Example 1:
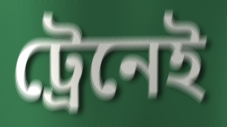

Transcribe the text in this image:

ট্রেনেই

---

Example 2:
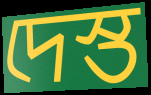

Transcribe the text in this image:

দেস্ত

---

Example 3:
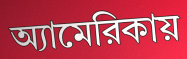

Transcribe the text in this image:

অ্যামেরিকায়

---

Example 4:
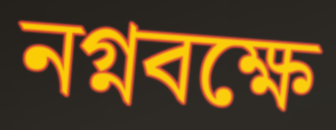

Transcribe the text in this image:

নগ্নবক্ষে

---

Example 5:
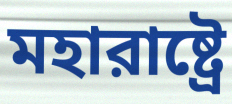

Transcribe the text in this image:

মহারাষ্ট্রে